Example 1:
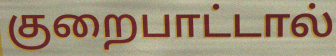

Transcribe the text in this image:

குறைபாட்டால்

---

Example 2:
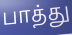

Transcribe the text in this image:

பாத்து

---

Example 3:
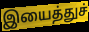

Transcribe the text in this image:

இயைத்துச்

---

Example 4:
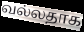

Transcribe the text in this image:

வல்லதாக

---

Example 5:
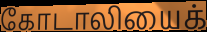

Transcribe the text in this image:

கோடாலியைக்